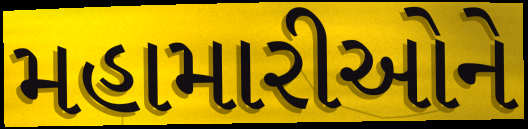
મહામારીઓને